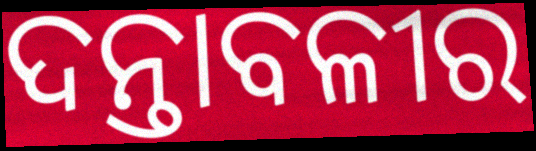
ଦନ୍ତାବଳୀର